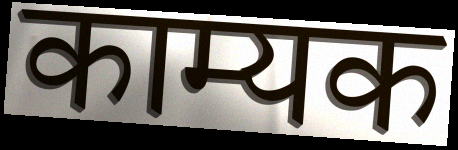
काम्यक